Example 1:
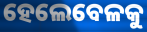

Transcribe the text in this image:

ହେଲେବେଳକୁ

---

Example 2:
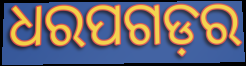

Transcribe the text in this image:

ଧରପଗଡ଼ର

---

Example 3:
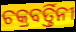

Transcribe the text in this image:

ଚକ୍ରବର୍ତ୍ତିନୀ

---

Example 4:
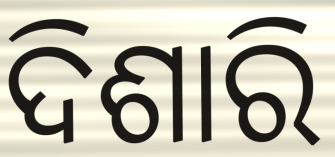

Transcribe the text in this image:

ଦିଶାରି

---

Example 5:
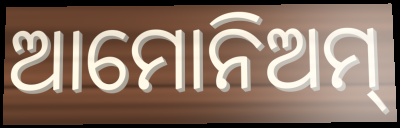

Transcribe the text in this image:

ଆମୋନିଅମ୍